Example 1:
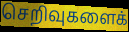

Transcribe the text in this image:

செறிவுகளைக்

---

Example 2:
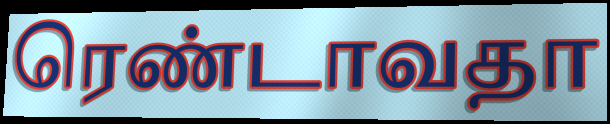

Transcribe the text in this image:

ரெண்டாவதா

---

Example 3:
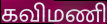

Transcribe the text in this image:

கவிமணி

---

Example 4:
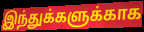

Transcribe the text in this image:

இந்துக்களுக்காக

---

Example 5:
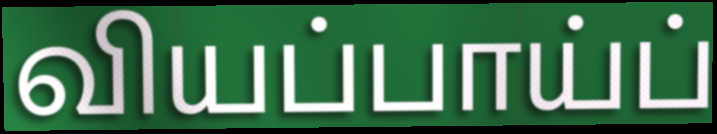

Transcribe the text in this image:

வியப்பாய்ப்